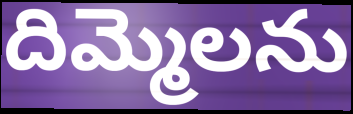
దిమ్మెలను